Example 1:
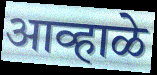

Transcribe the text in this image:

आव्हाळे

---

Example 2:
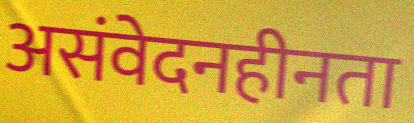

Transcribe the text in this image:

असंवेदनहीनता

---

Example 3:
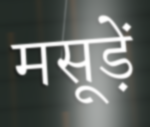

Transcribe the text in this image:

मसूड़ें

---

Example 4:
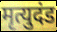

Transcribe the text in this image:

मृत्युदंड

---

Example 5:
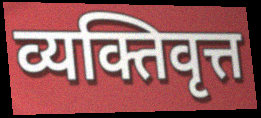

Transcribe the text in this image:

व्यक्तिवृत्त